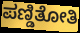
ಪಣ್ಡಿತೋತಿ